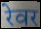
रेवर